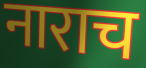
नाराच